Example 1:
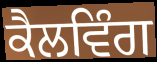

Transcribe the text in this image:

ਕੈਲਵਿੰਗ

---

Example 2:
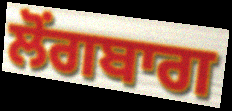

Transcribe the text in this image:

ਲੋਂਗਬਾਗ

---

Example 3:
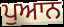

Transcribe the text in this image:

ਪੁਆਨ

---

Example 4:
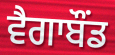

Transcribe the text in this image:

ਵੈਗਾਬੌਂਡ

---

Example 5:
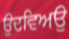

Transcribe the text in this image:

ਉਦਵਿਅਉ